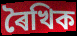
ৰৈখিক